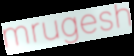
mrugesh